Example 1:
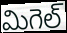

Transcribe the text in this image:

మిగెల్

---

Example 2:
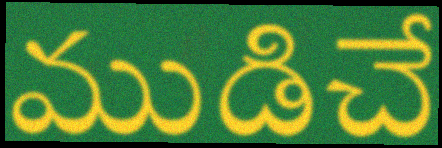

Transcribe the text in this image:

ముడిచే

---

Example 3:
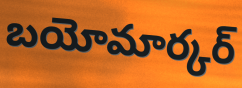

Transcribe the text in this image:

బయోమార్కర్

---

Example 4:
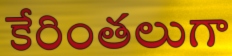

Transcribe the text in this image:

కేరింతలుగా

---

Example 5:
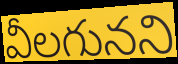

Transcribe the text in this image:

వీలగునని